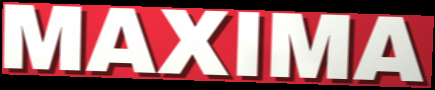
MAXIMA